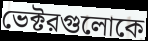
ভেক্টরগুলোকে